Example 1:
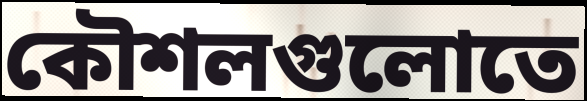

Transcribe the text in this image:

কৌশলগুলোতে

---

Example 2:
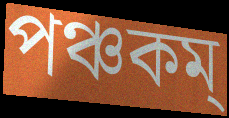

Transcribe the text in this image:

পঞ্চকম্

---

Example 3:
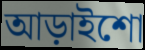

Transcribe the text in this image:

আড়াইশো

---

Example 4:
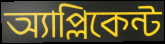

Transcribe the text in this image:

অ্যাপ্লিকেন্ট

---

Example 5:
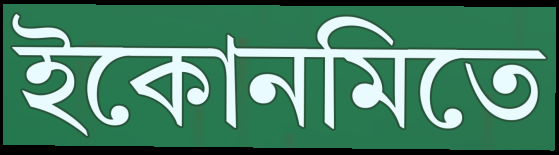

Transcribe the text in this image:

ইকোনমিতে